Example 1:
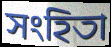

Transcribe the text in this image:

সংহিতা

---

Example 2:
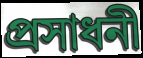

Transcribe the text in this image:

প্রসাধনী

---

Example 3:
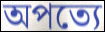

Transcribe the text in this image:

অপত্যে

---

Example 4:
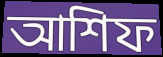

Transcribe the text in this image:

আশিফ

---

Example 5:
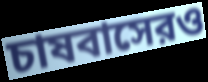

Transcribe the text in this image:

চাষবাসেরও